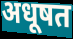
अधूषत